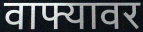
वाफ्यावर